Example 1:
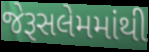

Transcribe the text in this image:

જેરૂસલેમમાંથી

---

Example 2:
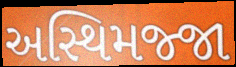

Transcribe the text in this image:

અસ્થિમજ્જા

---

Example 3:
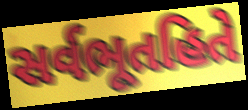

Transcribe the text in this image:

સર્વભૂતહિતે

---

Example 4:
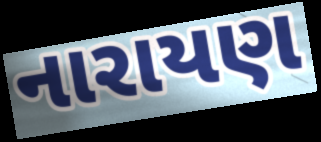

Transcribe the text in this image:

નારાયણ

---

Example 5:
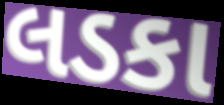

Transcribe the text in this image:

લડકા